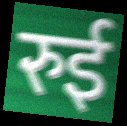
रुई